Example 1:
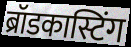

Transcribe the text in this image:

ब्रॉडकास्टिंग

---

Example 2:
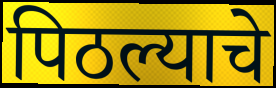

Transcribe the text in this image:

पिठल्याचे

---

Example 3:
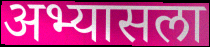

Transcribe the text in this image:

अभ्यासला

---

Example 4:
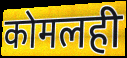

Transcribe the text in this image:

कोमलही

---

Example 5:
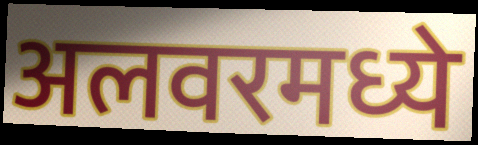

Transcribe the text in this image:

अलवरमध्ये